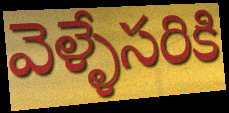
వెళ్ళేసరికి